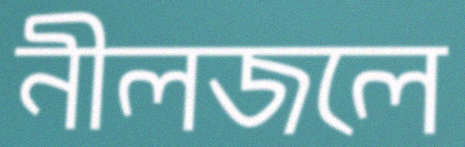
নীলজলে